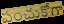
పంచుకోగా